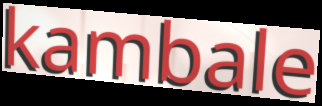
kambale